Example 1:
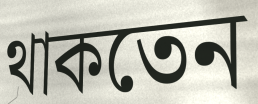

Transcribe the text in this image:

থাকতেন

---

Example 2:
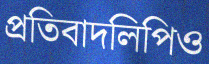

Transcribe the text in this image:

প্রতিবাদলিপিও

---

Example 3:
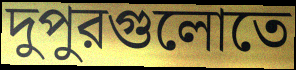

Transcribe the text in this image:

দুপুরগুলোতে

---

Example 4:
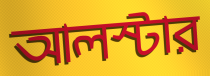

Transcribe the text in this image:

আলস্টার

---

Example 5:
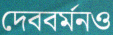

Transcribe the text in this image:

দেববর্মনও